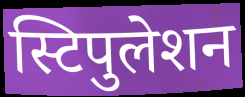
स्टिपुलेशन